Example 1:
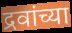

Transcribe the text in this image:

द्रवांच्या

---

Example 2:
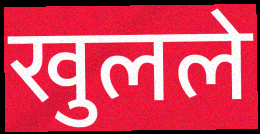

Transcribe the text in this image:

खुलले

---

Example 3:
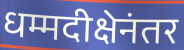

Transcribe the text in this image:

धम्मदीक्षेनंतर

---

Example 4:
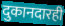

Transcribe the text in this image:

दुकानदारही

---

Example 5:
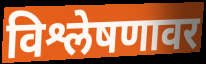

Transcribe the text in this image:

विश्लेषणावर